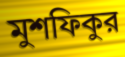
মুশফিকুর